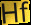
Hf